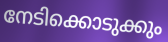
നേടിക്കൊടുക്കും